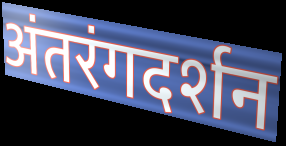
अंतरंगदर्शन